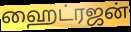
ஹைட்ரஜன்